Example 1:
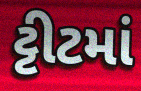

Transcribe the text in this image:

ટ્ટીટમાં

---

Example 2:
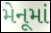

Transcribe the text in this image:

મેનૂમાં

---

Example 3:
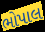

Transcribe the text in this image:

ભોપાલ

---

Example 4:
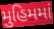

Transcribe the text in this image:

મુહિમમાં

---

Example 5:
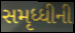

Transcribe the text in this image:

સમૃધ્ધીની